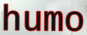
humo